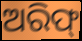
ଅରିଫ୍